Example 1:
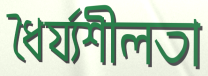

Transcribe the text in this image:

ধৈর্য্যশীলতা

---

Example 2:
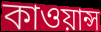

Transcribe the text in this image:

কাওয়ান্স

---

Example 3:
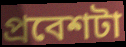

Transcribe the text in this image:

প্রবেশটা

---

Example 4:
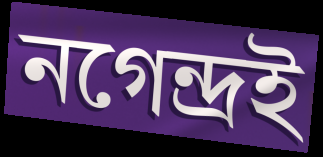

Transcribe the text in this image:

নগেন্দ্রই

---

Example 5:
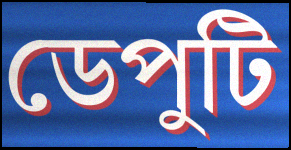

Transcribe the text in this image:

ডেপুটি